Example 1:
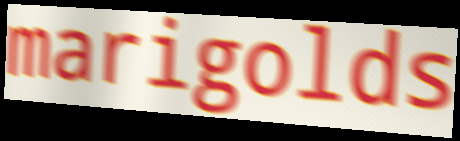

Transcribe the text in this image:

marigolds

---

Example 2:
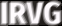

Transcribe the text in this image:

IRVG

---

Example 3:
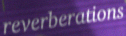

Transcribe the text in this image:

reverberations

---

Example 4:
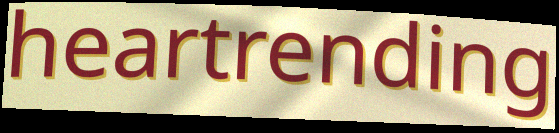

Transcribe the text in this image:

heartrending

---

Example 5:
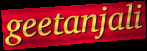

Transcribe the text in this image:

geetanjali